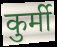
कुर्मी